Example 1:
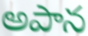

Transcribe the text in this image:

అపాన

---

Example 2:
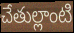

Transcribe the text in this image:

చేతుల్లాంటి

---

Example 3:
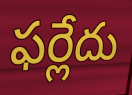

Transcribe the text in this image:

ఫర్లేదు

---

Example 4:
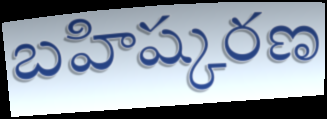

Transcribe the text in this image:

బహిష్కరణ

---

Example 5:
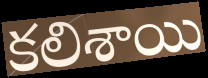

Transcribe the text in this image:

కలిశాయి